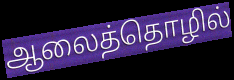
ஆலைத்தொழில்